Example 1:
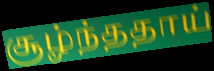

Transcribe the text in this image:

சூழ்ந்ததாய்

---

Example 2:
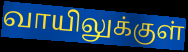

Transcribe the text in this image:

வாயிலுக்குள்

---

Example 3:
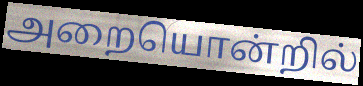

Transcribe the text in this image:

அறையொன்றில்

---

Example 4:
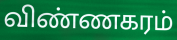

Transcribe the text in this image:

விண்ணகரம்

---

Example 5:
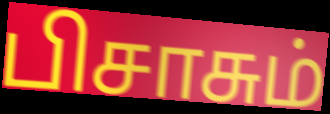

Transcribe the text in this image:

பிசாசும்